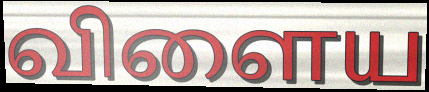
விளைய